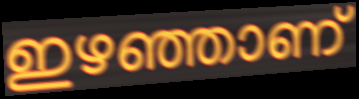
ഇഴഞ്ഞാണ്